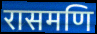
रासमणि